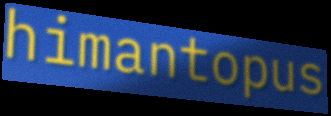
himantopus